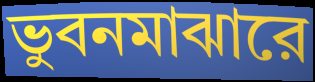
ভুবনমাঝারে